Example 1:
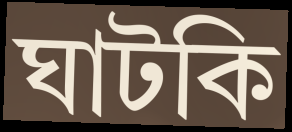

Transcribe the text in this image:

ঘাটকি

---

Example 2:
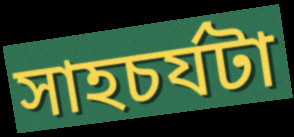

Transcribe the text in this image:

সাহচর্যটা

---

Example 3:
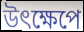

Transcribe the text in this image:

উৎক্ষেপে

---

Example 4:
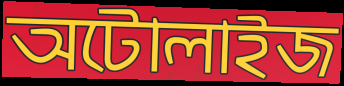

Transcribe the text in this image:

অটোলাইজ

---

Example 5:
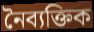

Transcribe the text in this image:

নৈব্যক্তিক